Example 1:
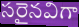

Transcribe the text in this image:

సరైనవిగా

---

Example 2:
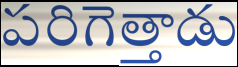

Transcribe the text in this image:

పరిగెత్తాడు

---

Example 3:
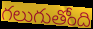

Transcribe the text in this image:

గలుగుతోంది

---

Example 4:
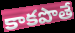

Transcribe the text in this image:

కాకపొతే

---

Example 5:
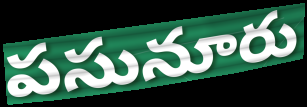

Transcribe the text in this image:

పసునూరు